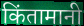
किंतामानी